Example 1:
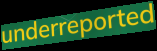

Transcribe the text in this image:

underreported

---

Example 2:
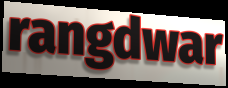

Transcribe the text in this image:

rangdwar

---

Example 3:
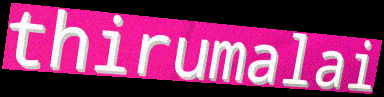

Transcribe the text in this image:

thirumalai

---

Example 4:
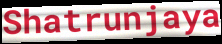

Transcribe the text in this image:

Shatrunjaya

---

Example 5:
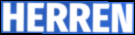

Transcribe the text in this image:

HERREN